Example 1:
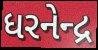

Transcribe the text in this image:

ધરનેન્દ્ર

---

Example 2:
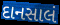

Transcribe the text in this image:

દાનસાલં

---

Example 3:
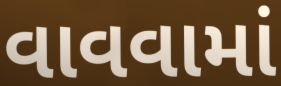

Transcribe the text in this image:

વાવવામાં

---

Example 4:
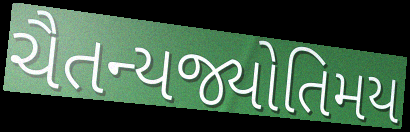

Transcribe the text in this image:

ચૈતન્યજ્યોતિમય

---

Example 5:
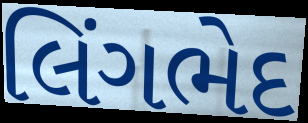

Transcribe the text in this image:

લિંગભેદ